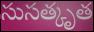
సుసత్కృత